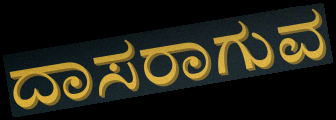
ದಾಸರಾಗುವ